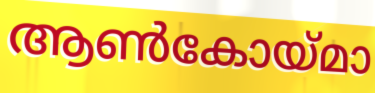
ആൺകോയ്മാ